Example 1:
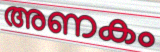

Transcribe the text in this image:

അണകം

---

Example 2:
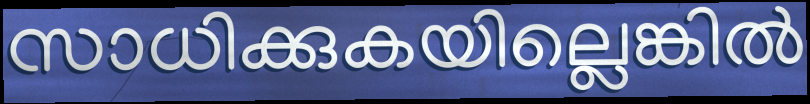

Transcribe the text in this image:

സാധിക്കുകയില്ലെങ്കിൽ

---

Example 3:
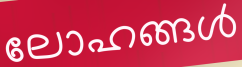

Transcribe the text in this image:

ലോഹങ്ങൾ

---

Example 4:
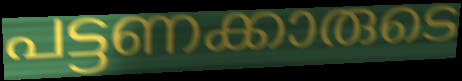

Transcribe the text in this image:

പട്ടണക്കാരുടെ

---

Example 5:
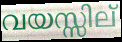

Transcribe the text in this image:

വയസ്സില്